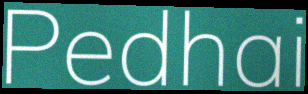
Pedhai